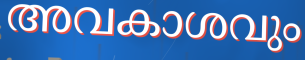
അവകാശവും